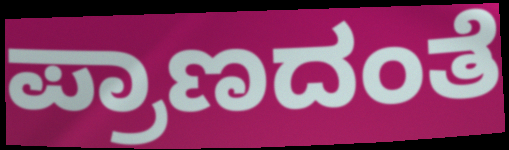
ಪ್ರಾಣದಂತೆ